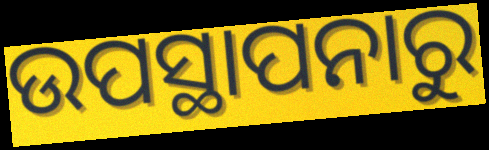
ଉପସ୍ଥାପନାରୁ